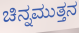
ಚಿನ್ನಮುತ್ತನ